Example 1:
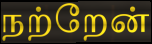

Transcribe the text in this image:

நற்றேன்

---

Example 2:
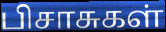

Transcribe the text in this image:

பிசாசுகள்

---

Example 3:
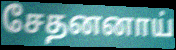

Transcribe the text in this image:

சேதனனாய்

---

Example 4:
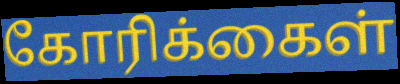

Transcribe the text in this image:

கோரிக்கைள்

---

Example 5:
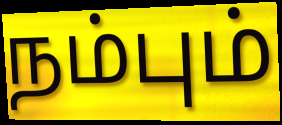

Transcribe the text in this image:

நம்பும்